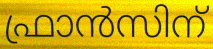
ഫ്രാൻസിന്